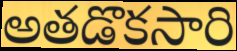
అతడొకసారి